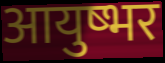
आयुष्भर